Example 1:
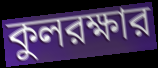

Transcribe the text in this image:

কুলরক্ষার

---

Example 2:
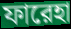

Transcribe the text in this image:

ফারেহা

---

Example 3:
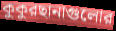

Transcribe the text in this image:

কুকুরছানাগুলোর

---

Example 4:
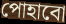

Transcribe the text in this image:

পোহাবো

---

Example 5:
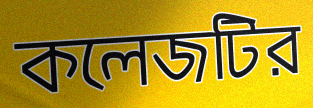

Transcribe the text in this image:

কলেজটির